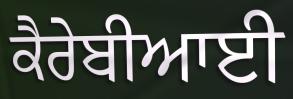
ਕੈਰੇਬੀਆਈ